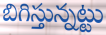
బిగిస్తున్నట్టు